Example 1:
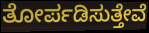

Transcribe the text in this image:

ತೋರ್ಪಡಿಸುತ್ತೇವೆ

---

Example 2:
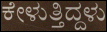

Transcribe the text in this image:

ಕೇಳುತ್ತಿದ್ದಳು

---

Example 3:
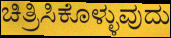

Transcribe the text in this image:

ಚಿತ್ರಿಸಿಕೊಳ್ಳುವುದು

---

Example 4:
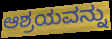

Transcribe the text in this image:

ಆಶ್ರಯವನ್ನು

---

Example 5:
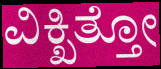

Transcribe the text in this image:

ವಿಕ್ಖಿತ್ತೋ